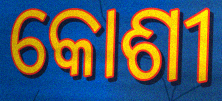
କୋଶୀ